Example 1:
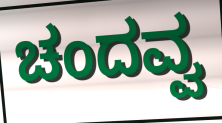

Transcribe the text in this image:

ಚಂದವ್ವ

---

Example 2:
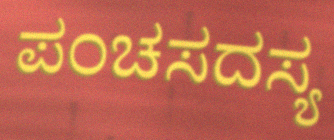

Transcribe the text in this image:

ಪಂಚಸದಸ್ಯ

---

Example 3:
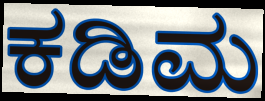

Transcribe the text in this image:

ಕಡಿಮ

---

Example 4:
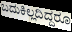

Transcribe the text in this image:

ಬದುಕಿಲ್ಲದಿದ್ದರೂ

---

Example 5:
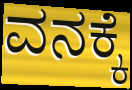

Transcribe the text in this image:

ವನಕ್ಕೆ